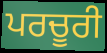
ਪਰਚੂਰੀ